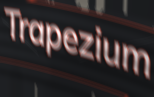
Trapezium